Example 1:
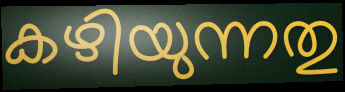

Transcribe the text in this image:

കഴിയുന്നതു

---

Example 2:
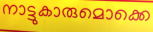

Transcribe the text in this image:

നാട്ടുകാരുമൊക്കെ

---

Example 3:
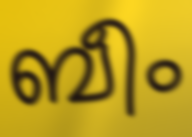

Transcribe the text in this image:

ബീം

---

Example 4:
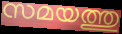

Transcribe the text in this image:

സമയത്തു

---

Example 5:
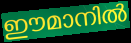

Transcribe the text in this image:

ഈമാനിൽ